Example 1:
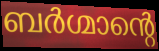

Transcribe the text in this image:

ബർഗ്മാന്റെ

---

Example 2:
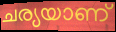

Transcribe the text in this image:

ചര്യയാണ്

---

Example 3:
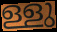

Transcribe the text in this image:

ള്ളു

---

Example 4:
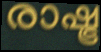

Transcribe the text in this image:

രാഷ്ട്ര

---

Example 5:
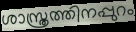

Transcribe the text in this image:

ശാസ്ത്രത്തിനപ്പുറം